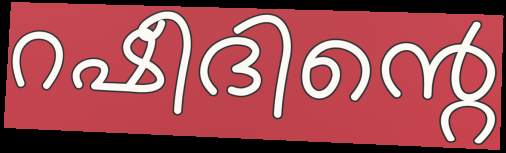
റഷീദിന്റെ